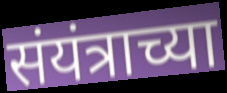
संयंत्राच्या